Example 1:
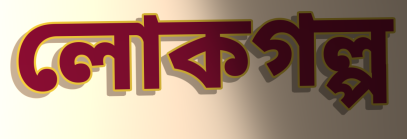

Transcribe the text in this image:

লোকগল্প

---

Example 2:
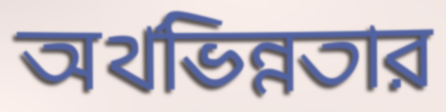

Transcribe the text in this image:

অর্থভিন্নতার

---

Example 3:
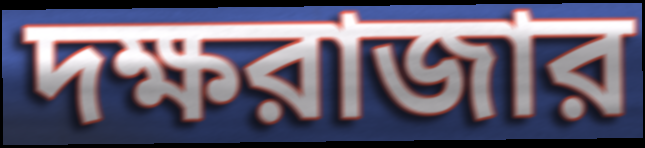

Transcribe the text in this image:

দক্ষরাজার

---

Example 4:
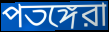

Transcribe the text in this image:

পতঙ্গেরা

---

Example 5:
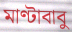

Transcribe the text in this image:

মাণ্টাবাবু